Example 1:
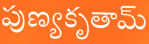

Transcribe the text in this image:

పుణ్యకృతామ్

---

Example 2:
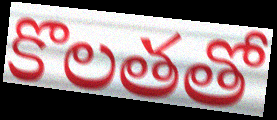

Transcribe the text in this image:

కొలతతో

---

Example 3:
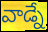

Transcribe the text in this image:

వాడ్నే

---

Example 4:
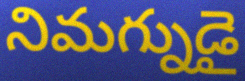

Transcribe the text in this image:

నిమగ్నుడై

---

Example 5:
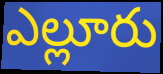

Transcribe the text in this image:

ఎల్లూరు